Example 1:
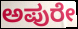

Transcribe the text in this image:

ಅಪುರೇ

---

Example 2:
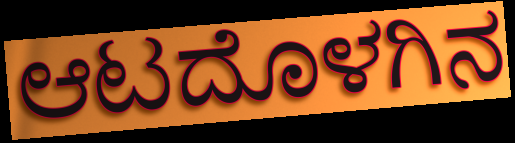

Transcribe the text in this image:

ಆಟದೊಳಗಿನ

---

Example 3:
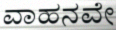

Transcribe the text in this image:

ವಾಹನವೇ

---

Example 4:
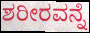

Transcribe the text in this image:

ಶರೀರವನ್ನೆ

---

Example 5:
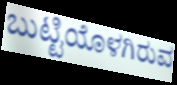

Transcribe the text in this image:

ಬುಟ್ಟಿಯೊಳಗಿರುವ